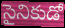
సైనికుడో